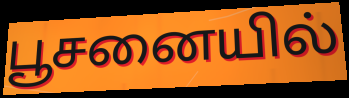
பூசனையில்